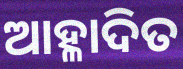
ଆହ୍ଳାଦିତ